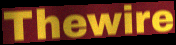
Thewire